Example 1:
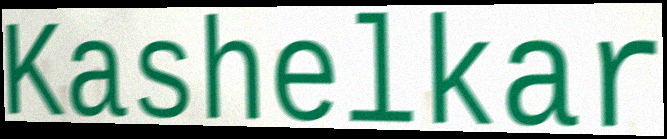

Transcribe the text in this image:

Kashelkar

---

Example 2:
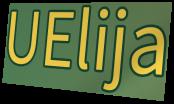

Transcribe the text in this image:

UElija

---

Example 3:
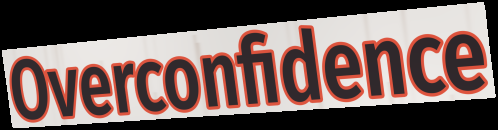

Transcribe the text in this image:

Overconfidence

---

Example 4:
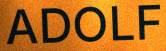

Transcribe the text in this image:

ADOLF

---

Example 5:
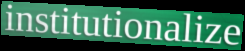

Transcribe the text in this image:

institutionalize